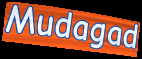
Mudagad